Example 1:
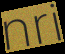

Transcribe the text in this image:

nri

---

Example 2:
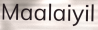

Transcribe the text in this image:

Maalaiyil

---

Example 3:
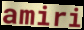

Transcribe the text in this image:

amiri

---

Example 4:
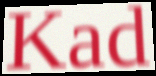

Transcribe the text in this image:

Kad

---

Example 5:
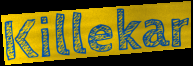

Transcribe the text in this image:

Killekar